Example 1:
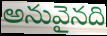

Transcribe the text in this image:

అనువైనది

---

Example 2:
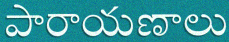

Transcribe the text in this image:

పారాయణాలు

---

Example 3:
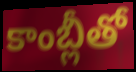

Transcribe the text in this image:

కాంబ్లీతో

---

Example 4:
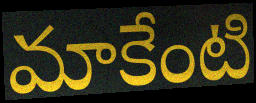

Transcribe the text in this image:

మాకేంటి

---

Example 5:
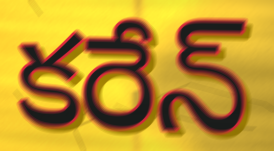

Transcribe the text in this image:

కరేన్